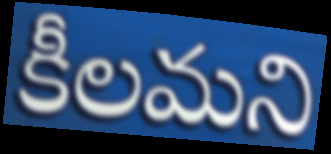
కీలమని